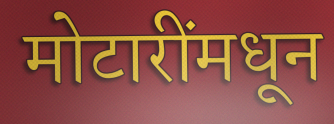
मोटारींमधून